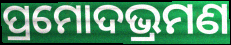
ପ୍ରମୋଦଭ୍ରମଣ